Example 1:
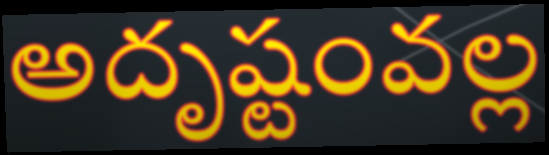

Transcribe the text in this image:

అదృష్టంవల్ల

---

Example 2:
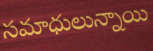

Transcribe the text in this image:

సమాధులున్నాయి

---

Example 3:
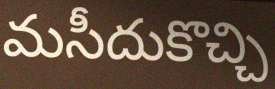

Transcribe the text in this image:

మసీదుకొచ్చి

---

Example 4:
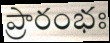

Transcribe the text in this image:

ప్రారంభః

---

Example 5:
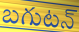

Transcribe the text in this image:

బగుటన్